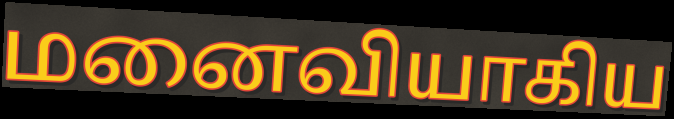
மனைவியாகிய